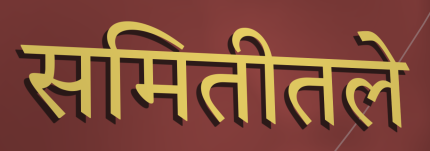
समितीतले